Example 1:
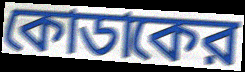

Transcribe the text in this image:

কোডাকের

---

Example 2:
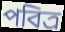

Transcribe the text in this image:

পবিত্র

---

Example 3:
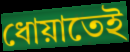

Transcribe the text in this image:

ধোয়াতেই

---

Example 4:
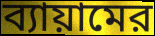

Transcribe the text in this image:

ব্যায়ামের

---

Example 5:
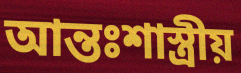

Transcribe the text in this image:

আন্তঃশাস্ত্রীয়